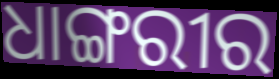
ଧାଙ୍ଗରୀର